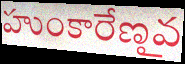
హుంకారేణౖవ